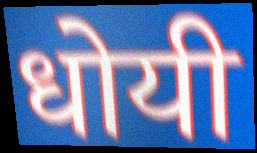
धोयी